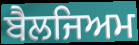
ਬੈਲਜਿਅਮ